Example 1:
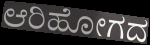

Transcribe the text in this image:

ಆರಿಹೋಗದ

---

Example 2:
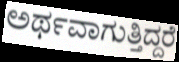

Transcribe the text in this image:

ಅರ್ಥವಾಗುತ್ತಿದ್ದರೆ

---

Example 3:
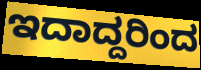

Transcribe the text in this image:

ಇದಾದ್ದರಿಂದ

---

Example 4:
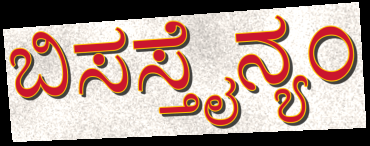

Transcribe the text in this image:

ಬಿಸಸ್ತೈನ್ಯಂ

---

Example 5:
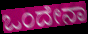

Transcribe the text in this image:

ಒಂದೇನಾ